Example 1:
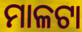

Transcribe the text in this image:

ମାଳଟା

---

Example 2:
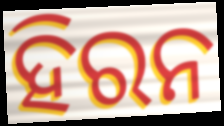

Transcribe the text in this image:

ହିରନ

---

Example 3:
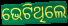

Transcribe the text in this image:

ଭେଟିଥିଲେ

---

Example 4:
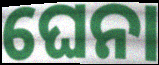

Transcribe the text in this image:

ଘେନା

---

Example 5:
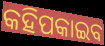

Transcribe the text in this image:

କହିପକାଇବ